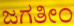
ಜಗತೀಂ